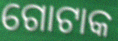
ଗୋଟାକ